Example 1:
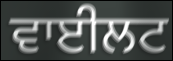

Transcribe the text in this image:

ਵਾਈਲਟ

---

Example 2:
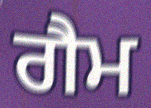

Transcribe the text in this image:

ਗੈਮ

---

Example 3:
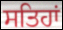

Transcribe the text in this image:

ਸਤਿਹਾਂ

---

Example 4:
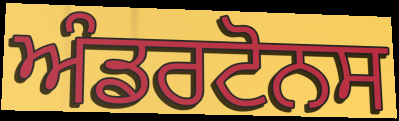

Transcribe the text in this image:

ਅੰਡਰਟੋਨਸ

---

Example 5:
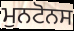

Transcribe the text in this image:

ਮੁਨਟੋਨਸ